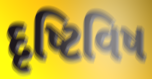
દૃષ્ટિવિષ